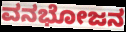
ವನಭೋಜನ